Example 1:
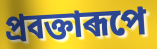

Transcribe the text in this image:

প্ৰবক্তাৰূপে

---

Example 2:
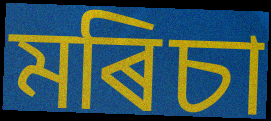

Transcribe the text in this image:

মৰিচা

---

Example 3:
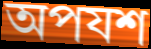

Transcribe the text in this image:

অপযশ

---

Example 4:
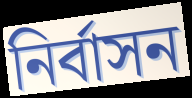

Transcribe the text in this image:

নিৰ্বাসন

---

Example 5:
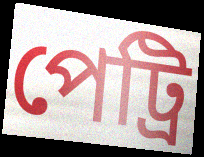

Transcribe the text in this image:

পেট্ৰি